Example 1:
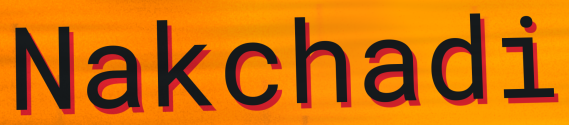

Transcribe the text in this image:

Nakchadi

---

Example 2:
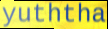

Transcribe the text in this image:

yuththa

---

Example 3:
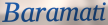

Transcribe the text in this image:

Baramati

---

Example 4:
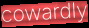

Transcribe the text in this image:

cowardly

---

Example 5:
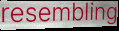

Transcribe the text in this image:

resembling